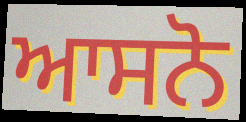
ਆਸਨੋ